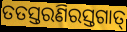
ତତସ୍ତରଣିରସ୍ତଗାତ୍